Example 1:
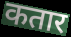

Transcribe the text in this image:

कतार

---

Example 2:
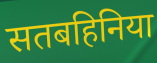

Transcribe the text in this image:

सतबहिनिया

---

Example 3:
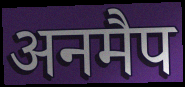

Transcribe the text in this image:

अनमैप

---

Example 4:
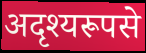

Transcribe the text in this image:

अदृश्यरूपसे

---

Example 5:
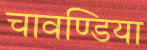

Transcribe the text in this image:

चावण्डिया